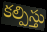
కల్పిస్తు